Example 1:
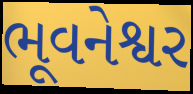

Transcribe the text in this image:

ભૂવનેશ્વર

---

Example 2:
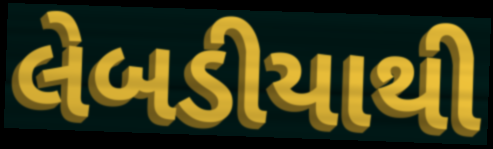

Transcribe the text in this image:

લેબડીયાથી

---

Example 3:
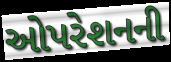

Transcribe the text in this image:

ઓપરેશનની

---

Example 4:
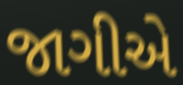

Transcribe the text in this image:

જાગીએ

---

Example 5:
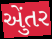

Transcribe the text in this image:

એુંતર